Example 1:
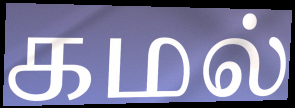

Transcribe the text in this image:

கமல்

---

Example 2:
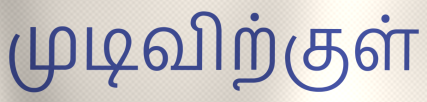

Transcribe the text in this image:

முடிவிற்குள்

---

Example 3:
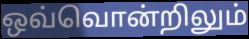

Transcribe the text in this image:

ஒவ்வொன்றிலும்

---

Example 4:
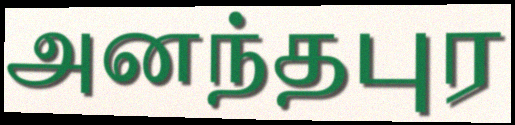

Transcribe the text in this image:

அனந்தபுர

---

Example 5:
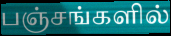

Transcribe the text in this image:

பஞ்சங்களில்